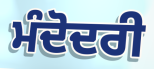
ਮੰਦੋਦਰੀ